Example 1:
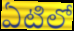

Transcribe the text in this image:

ఏటిలో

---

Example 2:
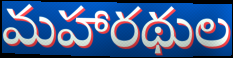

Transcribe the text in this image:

మహారథుల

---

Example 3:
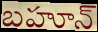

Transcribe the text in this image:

బహూన్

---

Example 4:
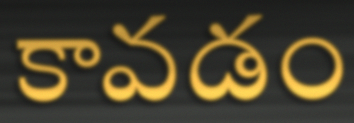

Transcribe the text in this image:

కావడం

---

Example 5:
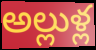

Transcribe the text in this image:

అల్లుళ్ల